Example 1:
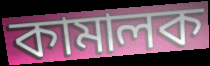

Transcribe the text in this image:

কামালক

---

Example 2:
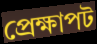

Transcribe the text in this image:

প্ৰেক্ষাপট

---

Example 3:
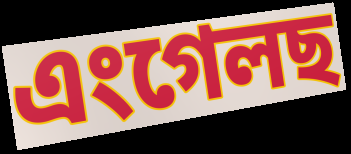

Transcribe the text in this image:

এংগেলছ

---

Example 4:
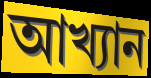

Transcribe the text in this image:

আখ্যান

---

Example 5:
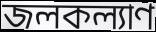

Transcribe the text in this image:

জলকল্যাণ